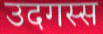
उदगस्स